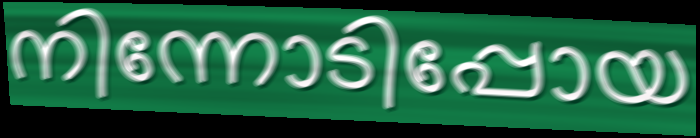
നിന്നോടിപ്പോയ